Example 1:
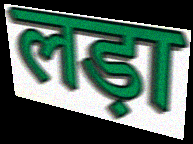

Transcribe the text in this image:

लड़ा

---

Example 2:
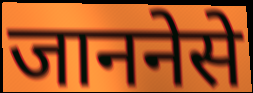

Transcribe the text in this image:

जाननेसे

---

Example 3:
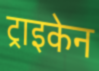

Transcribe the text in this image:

ट्राइकेन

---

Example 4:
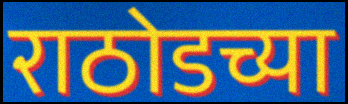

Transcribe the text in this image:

राठोडच्या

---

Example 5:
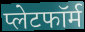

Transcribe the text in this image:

प्‍लेटफॉर्म